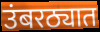
उंबरठ्यात